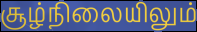
சூழ்நிலையிலும்